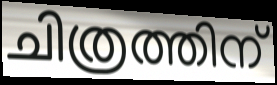
ചിത്രത്തിന്